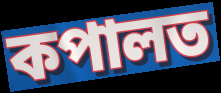
কপালত